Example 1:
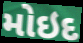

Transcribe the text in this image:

મોઇદ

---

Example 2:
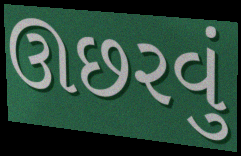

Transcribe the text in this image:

ઊછરવું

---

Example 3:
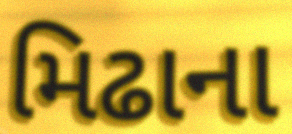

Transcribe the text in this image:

મિઢાના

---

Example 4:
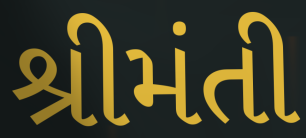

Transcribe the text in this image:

શ્રીમંતી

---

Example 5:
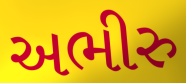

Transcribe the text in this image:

અભીરુ